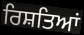
ਰਿਸ਼ਤਿਆਂ